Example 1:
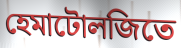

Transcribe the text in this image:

হেমাটোলজিতে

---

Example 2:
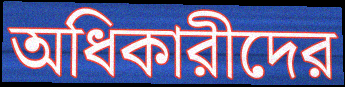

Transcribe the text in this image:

অধিকারীদের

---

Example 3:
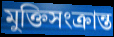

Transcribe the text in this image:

মুক্তিসংক্রান্ত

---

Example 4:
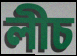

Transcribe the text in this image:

লীচ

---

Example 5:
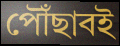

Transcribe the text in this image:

পৌঁছাবই